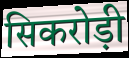
सिकरोड़ी